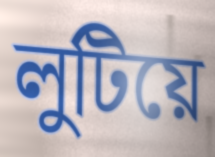
লুটিয়ে